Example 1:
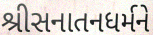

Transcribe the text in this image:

શ્રીસનાતનધર્મને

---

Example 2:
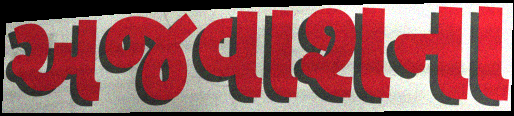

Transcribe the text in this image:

અજવાશના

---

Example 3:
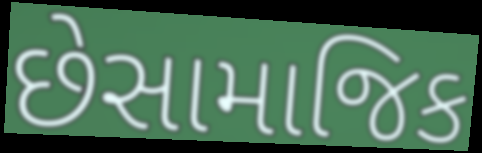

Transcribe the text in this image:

છેસામાજિક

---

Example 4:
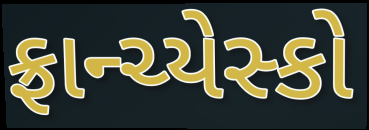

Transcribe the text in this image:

ફ્રાન્ચ્યેસ્કો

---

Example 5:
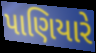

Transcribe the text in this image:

પાણિયારે